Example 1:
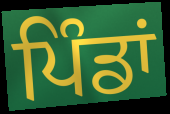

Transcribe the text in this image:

ਪਿੰਡਾਂ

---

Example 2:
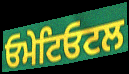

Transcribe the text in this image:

ਓਮੇਟਿਓਟਲ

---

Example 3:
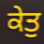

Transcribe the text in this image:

ਕੇਤੁ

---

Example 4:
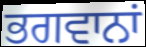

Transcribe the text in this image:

ਭਗਵਾਨਾਂ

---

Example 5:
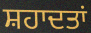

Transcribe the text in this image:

ਸ਼ਹਾਦਤਾਂ